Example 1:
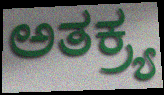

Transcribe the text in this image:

ಅತಕ್ರ್ಯ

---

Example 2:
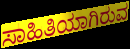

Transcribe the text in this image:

ಸಾಹಿತಿಯಾಗಿರುವ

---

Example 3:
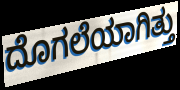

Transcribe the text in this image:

ದೊಗಲೆಯಾಗಿತ್ತು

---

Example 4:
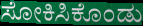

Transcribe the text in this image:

ಸೋಕಿಸಿಕೊಂಡು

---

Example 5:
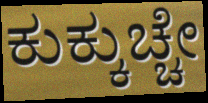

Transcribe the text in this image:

ಕುಕ್ಕುಚ್ಚೇ